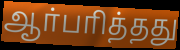
ஆர்பரித்தது